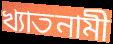
খ্যাতনামী